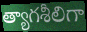
త్యాగశీలిగా